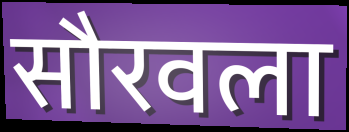
सौरवला